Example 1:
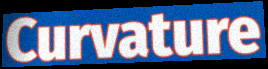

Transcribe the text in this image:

Curvature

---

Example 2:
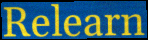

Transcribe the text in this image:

Relearn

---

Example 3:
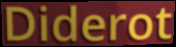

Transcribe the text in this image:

Diderot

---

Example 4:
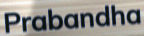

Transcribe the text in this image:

Prabandha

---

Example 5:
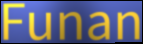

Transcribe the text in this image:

Funan